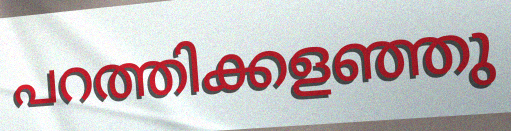
പറത്തിക്കളഞ്ഞു